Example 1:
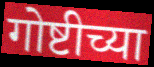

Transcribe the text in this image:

गोष्टीच्या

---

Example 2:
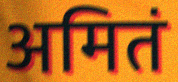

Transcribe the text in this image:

अमितं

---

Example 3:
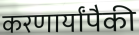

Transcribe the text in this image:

करणार्यांपैकी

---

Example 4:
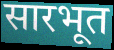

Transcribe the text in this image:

सारभूत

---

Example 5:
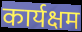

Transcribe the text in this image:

कार्यक्षम